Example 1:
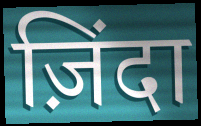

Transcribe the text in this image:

ज़िंदा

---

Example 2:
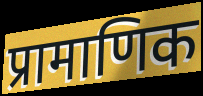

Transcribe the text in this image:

प्रामाणिक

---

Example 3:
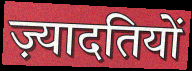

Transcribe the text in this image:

ज़्यादतियों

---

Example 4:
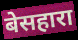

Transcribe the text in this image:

बेसहारा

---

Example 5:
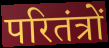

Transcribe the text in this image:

परितंत्रों